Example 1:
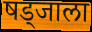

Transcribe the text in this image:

षड्जाला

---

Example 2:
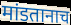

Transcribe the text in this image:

मांडतानाच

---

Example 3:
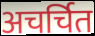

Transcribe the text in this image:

अचर्चित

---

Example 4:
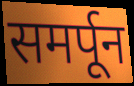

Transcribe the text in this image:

समर्पून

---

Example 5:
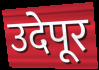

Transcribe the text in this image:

उदेपूर